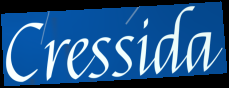
Cressida